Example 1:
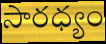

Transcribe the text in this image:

సారధ్యం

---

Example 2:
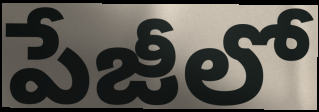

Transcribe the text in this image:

పేజీలో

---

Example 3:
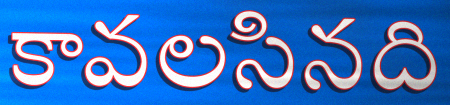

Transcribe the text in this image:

కావలసినది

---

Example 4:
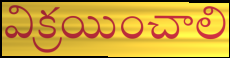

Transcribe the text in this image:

విక్రయించాలి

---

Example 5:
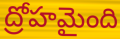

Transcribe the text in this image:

ద్రోహమైంది